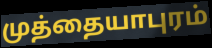
முத்தையாபுரம்